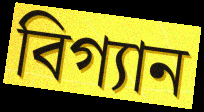
বিগ্যান